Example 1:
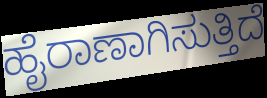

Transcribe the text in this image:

ಹೈರಾಣಾಗಿಸುತ್ತಿದೆ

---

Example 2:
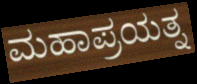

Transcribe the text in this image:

ಮಹಾಪ್ರಯತ್ನ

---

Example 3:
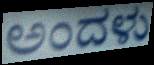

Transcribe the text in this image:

ಅಂದಳು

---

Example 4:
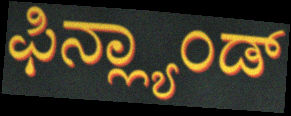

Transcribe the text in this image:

ಫಿನ್ಲ್ಯಾಂಡ್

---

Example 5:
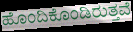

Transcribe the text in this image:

ಹೊಂದಿಕೊಂಡಿರುತ್ತವೆ